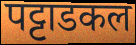
पट्टाडकल